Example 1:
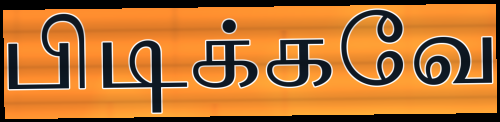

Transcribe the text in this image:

பிடிக்கவே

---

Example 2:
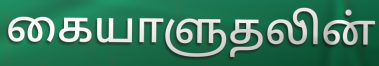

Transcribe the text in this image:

கையாளுதலின்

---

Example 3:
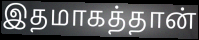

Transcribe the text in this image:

இதமாகத்தான்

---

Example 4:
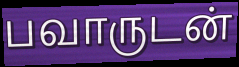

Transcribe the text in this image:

பவாருடன்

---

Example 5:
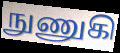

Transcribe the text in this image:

நுணுகி